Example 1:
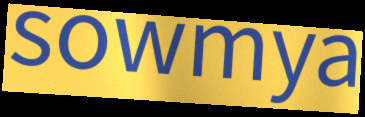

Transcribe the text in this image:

sowmya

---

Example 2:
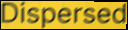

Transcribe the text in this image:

Dispersed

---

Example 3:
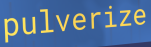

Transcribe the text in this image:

pulverize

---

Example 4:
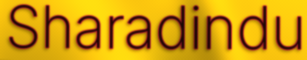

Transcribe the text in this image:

Sharadindu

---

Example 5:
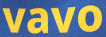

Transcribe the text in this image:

vavo